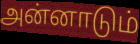
அன்னாடும்